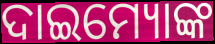
ଦାଇମ୍ଯୋଙ୍କ